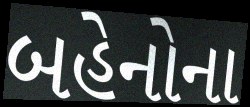
બહેનોના